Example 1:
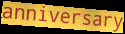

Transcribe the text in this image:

anniversary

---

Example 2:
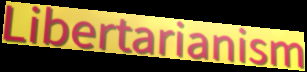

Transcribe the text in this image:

Libertarianism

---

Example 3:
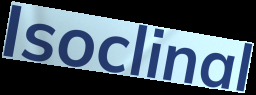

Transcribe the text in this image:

Isoclinal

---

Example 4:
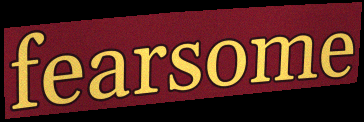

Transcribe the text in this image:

fearsome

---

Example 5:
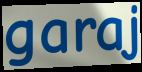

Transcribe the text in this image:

garaj